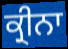
ਕ੍ਰੀਨਾ